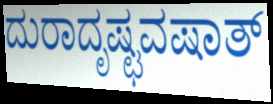
ದುರಾದೃಷ್ಟವಷಾತ್